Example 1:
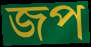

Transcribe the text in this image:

জপ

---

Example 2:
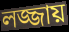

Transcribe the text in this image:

লজ্জায়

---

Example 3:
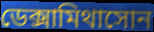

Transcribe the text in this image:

ডেক্সামিথাসোন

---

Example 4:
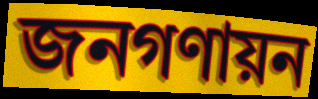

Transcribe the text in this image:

জনগণায়ন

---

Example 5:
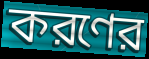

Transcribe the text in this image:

করণের